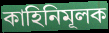
কাহিনিমূলক